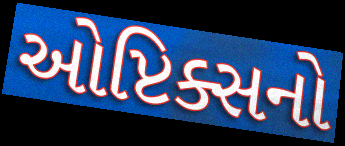
ઓપ્ટિક્સનો